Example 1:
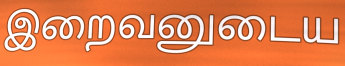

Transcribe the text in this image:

இறைவனுடைய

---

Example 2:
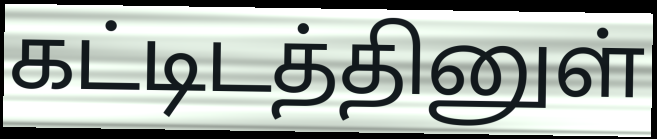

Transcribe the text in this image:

கட்டிடத்தினுள்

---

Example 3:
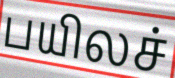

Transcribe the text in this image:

பயிலச்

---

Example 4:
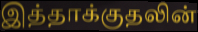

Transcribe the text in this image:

இத்தாக்குதலின்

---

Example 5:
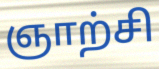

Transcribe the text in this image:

ஞாற்சி